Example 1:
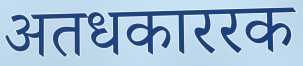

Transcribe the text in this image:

अतधकाररक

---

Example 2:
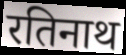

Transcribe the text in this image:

रतिनाथ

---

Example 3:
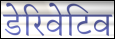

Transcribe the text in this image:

डेरिवेटिव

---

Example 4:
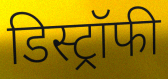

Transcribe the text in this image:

डिस्ट्रॉफी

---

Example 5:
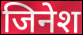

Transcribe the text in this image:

जिनेश